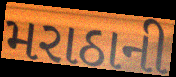
મરાઠાની